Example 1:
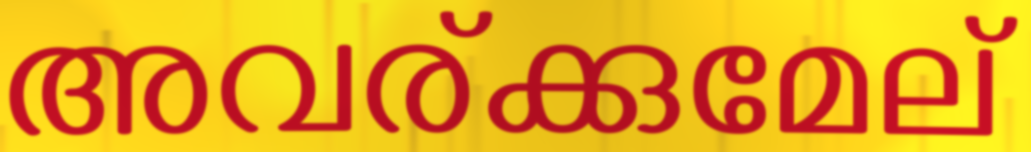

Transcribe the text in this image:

അവര്ക്കുമേല്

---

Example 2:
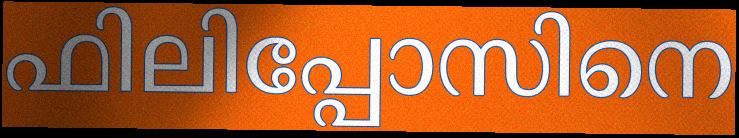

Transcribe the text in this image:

ഫിലിപ്പോസിനെ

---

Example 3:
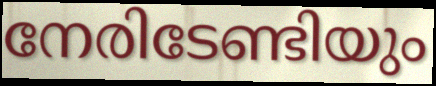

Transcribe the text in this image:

നേരിടേണ്ടിയും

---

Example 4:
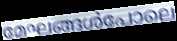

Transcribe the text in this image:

മേഘങ്ങൾപോലെ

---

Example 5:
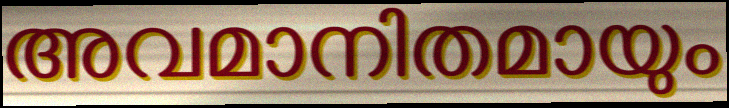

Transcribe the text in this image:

അവമാനിതമായും